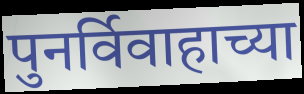
पुनर्विवाहाच्या